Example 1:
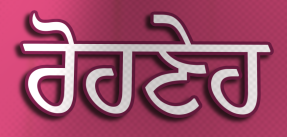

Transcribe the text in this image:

ਰੋਹਣੇਹ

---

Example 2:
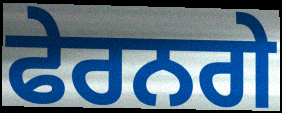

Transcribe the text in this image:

ਫੇਰਨਗੇ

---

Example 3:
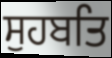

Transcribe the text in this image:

ਸੁਹਬਤਿ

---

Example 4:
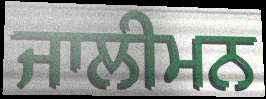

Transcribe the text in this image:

ਜਾਲੀਮਨ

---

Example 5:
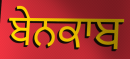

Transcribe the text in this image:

ਬੇਨਕਾਬ